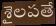
శైలపతే